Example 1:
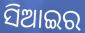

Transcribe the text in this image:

ସିଆଇର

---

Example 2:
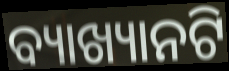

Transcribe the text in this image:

ବ୍ୟାଖ୍ୟାନଟି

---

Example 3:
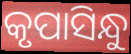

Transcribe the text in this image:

କୃପାସିନ୍ଧୁ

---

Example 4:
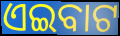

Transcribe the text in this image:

ଏଇବାଟ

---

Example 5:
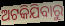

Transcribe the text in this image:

ଅଟକିଯିବାରୁ